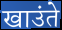
खाउंते